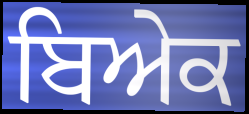
ਬਿਅੇਕ